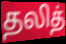
தலித்